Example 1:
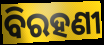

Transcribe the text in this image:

ବିରହଣୀ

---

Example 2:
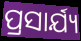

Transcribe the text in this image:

ପ୍ରସାର୍ଯ୍ୟ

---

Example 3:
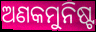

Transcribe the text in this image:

ଅଣକମୁନିଷ୍ଟ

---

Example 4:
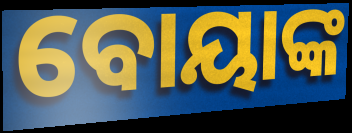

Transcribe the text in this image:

ବୋୟାଙ୍କ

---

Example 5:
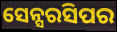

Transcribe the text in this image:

ସେନ୍ସରସିପର